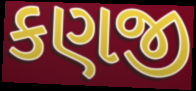
કણજી